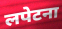
लपेटना